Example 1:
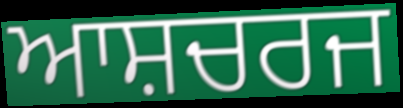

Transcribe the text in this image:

ਆਸ਼ਚਰਜ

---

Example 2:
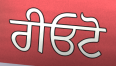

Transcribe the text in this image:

ਰੀਓਟੋ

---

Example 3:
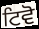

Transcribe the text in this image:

ਟਿਵੋ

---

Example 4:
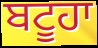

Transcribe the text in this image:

ਬਟੂਹਾ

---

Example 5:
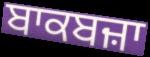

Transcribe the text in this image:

ਬਾਕਬਜ਼ਾ